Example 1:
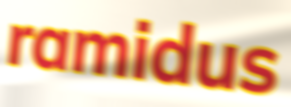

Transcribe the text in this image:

ramidus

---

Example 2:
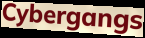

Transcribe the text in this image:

Cybergangs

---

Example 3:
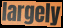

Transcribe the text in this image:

largely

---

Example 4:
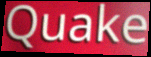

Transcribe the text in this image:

Quake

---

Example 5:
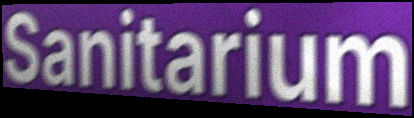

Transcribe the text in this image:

Sanitarium